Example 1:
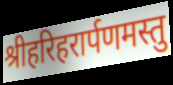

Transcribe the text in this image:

श्रीहरिहरार्पणमस्तु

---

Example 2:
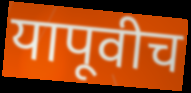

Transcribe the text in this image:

यापूवीच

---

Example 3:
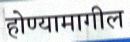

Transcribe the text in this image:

होण्यामागील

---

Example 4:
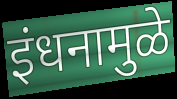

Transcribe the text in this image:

इंधनामुळे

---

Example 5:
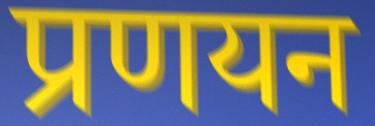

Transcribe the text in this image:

प्रणयन